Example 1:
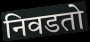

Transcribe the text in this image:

निवडतो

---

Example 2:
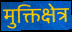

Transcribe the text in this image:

मुक्तिक्षेत्र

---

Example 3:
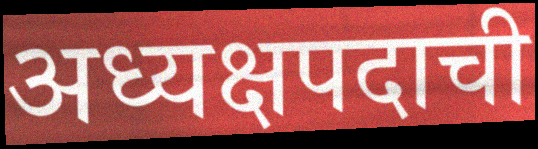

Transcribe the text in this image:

अध्यक्षपदाची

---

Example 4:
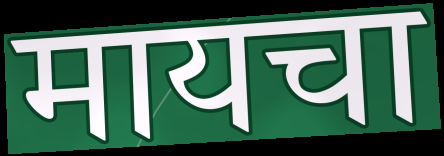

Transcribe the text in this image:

मायचा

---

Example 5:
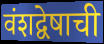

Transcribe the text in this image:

वंशद्वेषाची